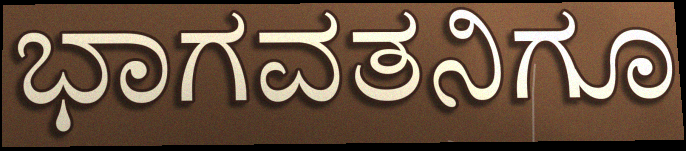
ಭಾಗವತನಿಗೂ